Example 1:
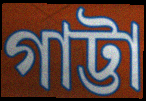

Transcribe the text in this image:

গাট্টা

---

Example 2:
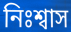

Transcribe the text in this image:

নিঃশ্বাস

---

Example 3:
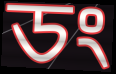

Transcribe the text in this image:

ডং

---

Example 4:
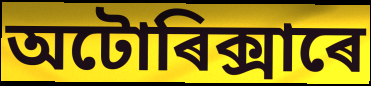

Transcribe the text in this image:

অটোৰিক্সাৰে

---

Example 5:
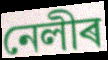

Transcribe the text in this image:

নেলীৰ